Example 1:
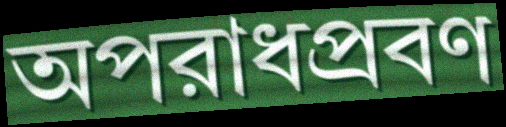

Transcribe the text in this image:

অপরাধপ্রবণ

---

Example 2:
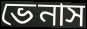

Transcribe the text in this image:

ভেনাস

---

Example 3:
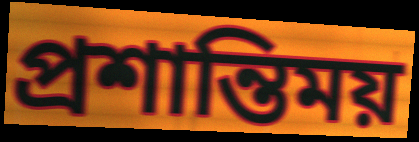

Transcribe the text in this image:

প্রশান্তিময়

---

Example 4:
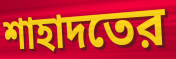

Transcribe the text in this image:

শাহাদতের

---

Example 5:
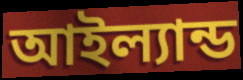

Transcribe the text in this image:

আইল্যান্ড